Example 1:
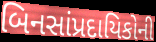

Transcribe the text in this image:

બિનસાંપ્રદાયિકોની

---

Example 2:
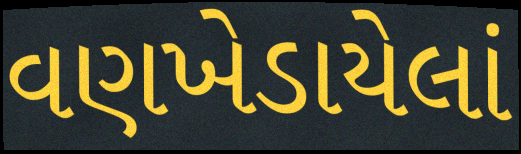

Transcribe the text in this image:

વણખેડાયેલાં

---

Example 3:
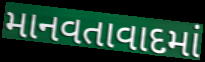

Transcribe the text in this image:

માનવતાવાદમાં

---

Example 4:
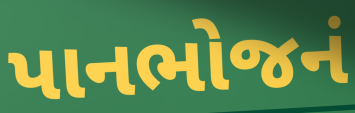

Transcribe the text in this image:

પાનભોજનં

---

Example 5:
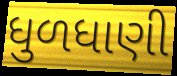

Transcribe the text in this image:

ધુળધાણી